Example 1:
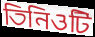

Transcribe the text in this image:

তিনিওটি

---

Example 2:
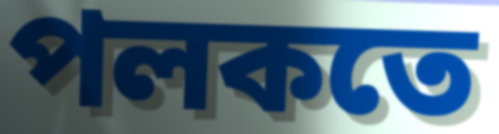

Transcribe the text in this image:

পলকতে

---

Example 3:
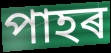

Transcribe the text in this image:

পাহৰ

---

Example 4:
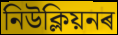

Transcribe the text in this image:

নিউক্লিয়নৰ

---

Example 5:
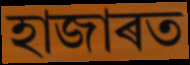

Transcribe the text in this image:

হাজাৰত